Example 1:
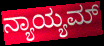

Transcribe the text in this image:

ನ್ಯಾಯ್ಯಮ್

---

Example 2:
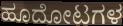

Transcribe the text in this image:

ಹೂದೋಟಗಳ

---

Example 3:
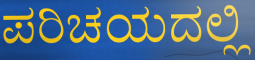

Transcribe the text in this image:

ಪರಿಚಯದಲ್ಲಿ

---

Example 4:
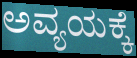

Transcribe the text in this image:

ಅವ್ಯಯಕ್ಕೆ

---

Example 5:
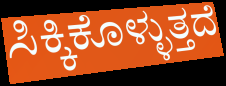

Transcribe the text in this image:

ಸಿಕ್ಕಿಕೊಳ್ಳುತ್ತದೆ